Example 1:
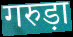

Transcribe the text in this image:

गरुड़ा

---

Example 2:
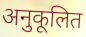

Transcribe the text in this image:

अनुकूलित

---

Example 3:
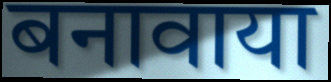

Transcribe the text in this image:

बनावाया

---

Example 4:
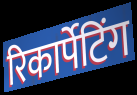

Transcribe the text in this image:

रिकार्पेटिंग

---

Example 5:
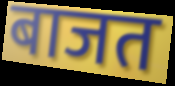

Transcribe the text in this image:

बाजत